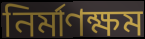
নির্মাণক্ষম